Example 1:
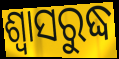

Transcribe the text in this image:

ଶ୍ୱାସରୁଦ୍ଧ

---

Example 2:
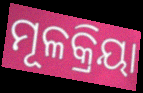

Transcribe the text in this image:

ମୂଳକ୍ରିୟା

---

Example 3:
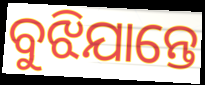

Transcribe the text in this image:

ବୁଝିଯାନ୍ତେ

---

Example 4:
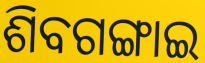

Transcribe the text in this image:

ଶିବଗଙ୍ଗାଇ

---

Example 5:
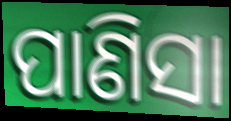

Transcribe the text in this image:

ପାଣିସା